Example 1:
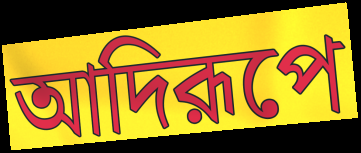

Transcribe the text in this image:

আদিরূপে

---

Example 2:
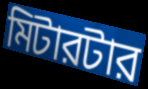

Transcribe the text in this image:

মিটারটার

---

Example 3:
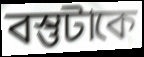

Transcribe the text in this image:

বস্তুটাকে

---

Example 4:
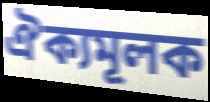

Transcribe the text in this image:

ঐক্যমূলক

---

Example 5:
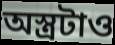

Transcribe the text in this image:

অস্ত্রটাও